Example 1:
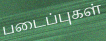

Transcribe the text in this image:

படைப்புகள்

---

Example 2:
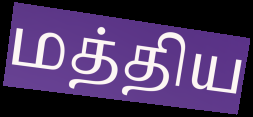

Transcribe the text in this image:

மத்திய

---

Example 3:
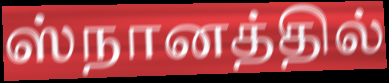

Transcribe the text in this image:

ஸ்நானத்தில்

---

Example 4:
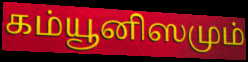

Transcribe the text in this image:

கம்யூனிஸமும்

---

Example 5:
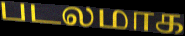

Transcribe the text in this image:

படலமாக